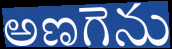
అణగెను